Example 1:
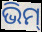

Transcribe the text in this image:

ଭିମ୍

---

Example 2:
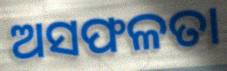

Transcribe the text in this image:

ଅସଫଳତା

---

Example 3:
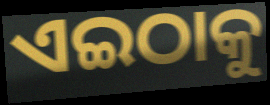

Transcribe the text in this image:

ଏଇଠାକୁ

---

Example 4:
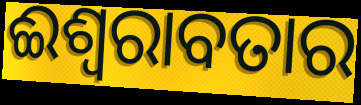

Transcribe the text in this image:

ଈଶ୍ୱରାବତାର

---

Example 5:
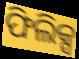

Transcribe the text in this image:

ଫିଲିକ୍ସ